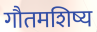
गौतमशिष्य